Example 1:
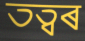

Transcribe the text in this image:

তত্বৰ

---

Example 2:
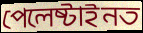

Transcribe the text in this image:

পেলেষ্টাইনত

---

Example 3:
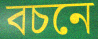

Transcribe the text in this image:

বচনে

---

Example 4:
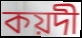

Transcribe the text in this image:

কয়দী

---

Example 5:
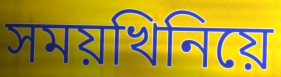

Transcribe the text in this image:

সময়খিনিয়ে